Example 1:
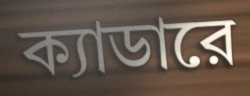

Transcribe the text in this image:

ক্যাডারে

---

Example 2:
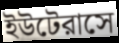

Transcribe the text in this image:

ইউটেরাসে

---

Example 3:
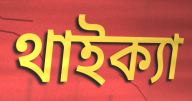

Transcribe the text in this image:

থাইক্যা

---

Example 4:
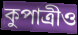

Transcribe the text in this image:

কুপাত্রীও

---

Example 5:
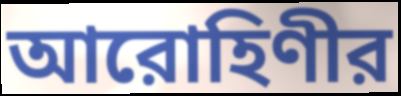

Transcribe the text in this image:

আরোহিণীর